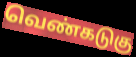
வெண்கடுகு